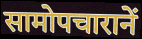
सामोपचारानें